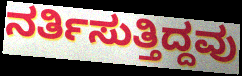
ನರ್ತಿಸುತ್ತಿದ್ದವು